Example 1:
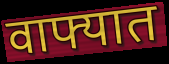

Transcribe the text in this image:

वाफ्यात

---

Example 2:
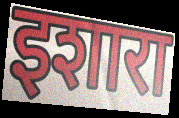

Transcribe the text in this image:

इशारा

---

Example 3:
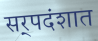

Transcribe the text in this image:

सर्पदंशात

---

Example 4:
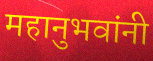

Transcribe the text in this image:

महानुभवांनी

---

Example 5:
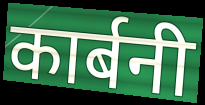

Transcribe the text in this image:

कार्बनी